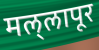
मल्लापूर